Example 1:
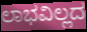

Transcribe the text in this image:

ಲಾಭವಿಲ್ಲದ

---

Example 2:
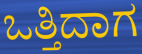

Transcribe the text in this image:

ಒತ್ತಿದಾಗ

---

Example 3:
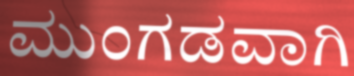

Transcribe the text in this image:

ಮುಂಗಡವಾಗಿ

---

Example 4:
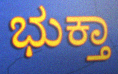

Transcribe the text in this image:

ಭುಕ್ತಾ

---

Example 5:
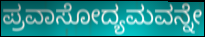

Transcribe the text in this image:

ಪ್ರವಾಸೋದ್ಯಮವನ್ನೇ